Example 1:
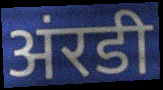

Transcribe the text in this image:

अंरडी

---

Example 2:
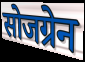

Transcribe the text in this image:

सोजग्रेन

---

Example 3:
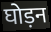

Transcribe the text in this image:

घोड़न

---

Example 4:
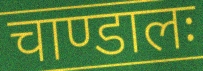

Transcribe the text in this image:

चाण्डालः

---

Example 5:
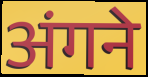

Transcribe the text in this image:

अंगने